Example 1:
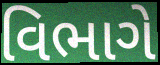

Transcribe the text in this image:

વિભાગે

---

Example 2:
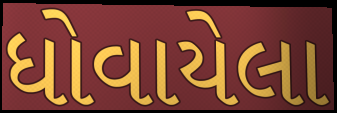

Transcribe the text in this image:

ધોવાયેલા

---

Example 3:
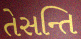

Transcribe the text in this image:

તેસન્તિ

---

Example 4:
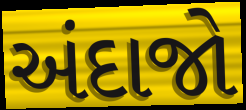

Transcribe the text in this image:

અંદાજો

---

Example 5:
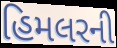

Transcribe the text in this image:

હિમલરની